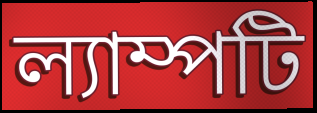
ল্যাম্পটি